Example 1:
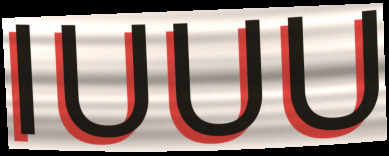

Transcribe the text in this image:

IUUU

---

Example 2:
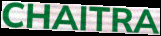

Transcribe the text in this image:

CHAITRA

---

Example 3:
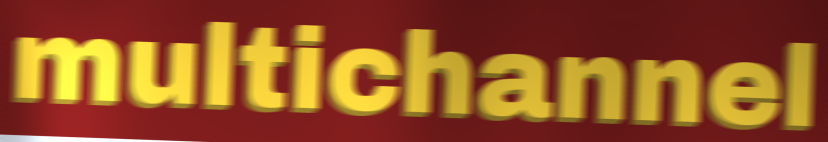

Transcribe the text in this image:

multichannel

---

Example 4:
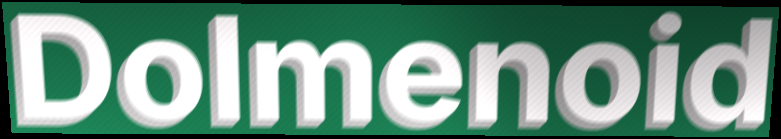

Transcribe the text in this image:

Dolmenoid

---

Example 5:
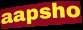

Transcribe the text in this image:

aapsho